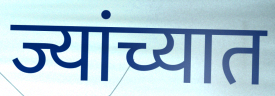
ज्यांच्यात